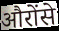
औरोंसे